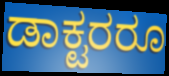
ಡಾಕ್ಟರರೂ